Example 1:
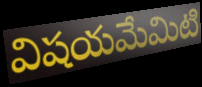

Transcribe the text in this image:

విషయమేమిటి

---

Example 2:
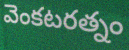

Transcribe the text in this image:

వెంకటరత్నం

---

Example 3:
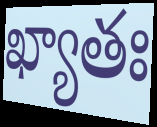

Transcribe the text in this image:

ఖ్యాతః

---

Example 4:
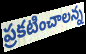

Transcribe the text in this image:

ప్రకటించాలన్న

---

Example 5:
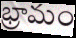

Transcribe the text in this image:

భ్రామం